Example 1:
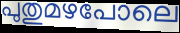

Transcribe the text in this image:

പുതുമഴപോലെ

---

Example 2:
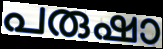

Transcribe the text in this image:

പരുഷാ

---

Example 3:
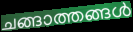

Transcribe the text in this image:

ചങ്ങാത്തങ്ങൾ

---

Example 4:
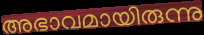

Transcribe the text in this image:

അഭാവമായിരുന്നു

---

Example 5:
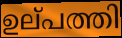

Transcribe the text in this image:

ഉല്‌പത്തി